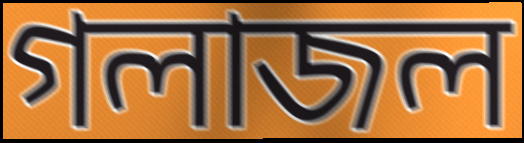
গলাজল